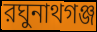
রঘুনাথগঞ্জ